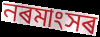
নৰমাংসৰ